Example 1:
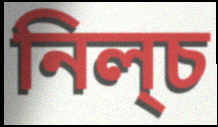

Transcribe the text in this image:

নিল্চ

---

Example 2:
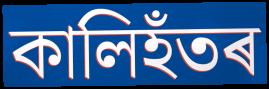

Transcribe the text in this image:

কালিহঁতৰ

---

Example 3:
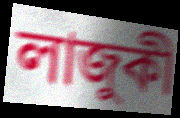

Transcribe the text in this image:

লাজুকী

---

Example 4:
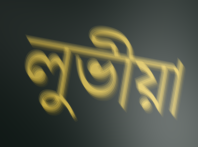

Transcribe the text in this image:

লুভীয়া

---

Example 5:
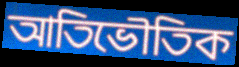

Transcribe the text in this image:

আতিভৌতিক